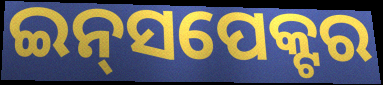
ଇନ୍‌ସପେକ୍ଟର